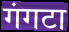
गंगटा